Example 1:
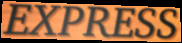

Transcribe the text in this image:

EXPRESS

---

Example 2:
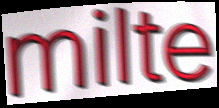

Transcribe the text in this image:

milte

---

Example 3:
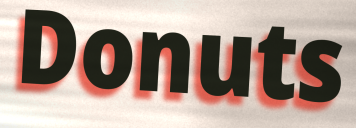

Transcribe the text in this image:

Donuts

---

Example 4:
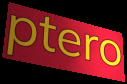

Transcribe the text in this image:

ptero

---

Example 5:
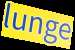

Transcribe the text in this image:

lunge